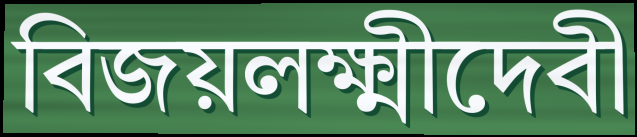
বিজয়লক্ষ্মীদেবী